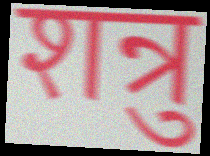
शन्रु